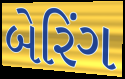
બેરિંગ